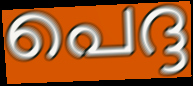
പെദ്ദ